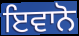
ਇਵਾਨੋ